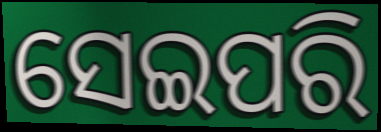
ସେଇପରି